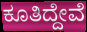
ಕೂತಿದ್ದೇವೆ